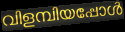
വിളമ്പിയപ്പോൾ